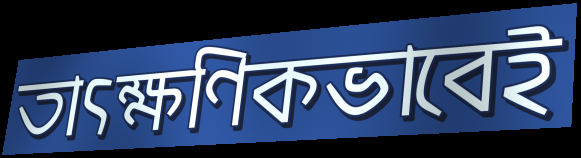
তাৎক্ষণিকভাবেই